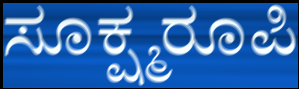
ಸೂಕ್ಷ್ಮರೂಪಿ